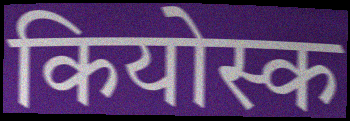
कियोस्क